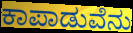
ಕಾಪಾಡುವೆನು